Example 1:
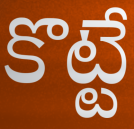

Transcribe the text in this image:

కొట్టే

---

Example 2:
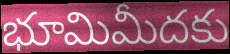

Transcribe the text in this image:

భూమిమీదకు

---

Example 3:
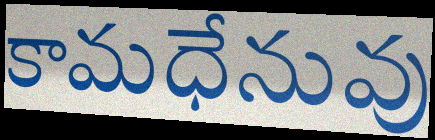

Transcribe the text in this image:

కామధేనువు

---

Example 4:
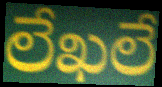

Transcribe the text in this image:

లేఖలే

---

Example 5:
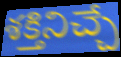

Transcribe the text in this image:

శక్తినిచ్చే